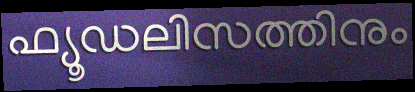
ഫ്യൂഡലിസത്തിനും